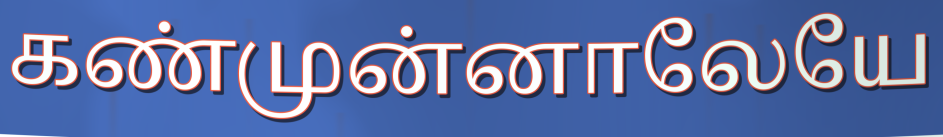
கண்முன்னாலேயே